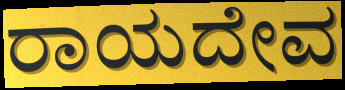
ರಾಯದೇವ